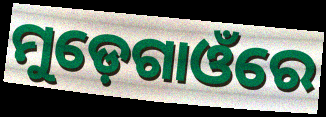
ମୁଡ଼େଗାଓଁରେ